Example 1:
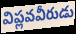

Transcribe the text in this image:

విప్లవవీరుడు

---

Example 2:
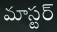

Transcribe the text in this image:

మాస్టర్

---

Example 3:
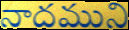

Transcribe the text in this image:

నాదముని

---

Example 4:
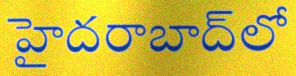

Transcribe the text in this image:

హైదరాబాద్‌లో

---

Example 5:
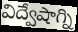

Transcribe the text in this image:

విద్వేషాగ్ని